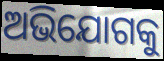
ଅଭିଯୋଗକୁ